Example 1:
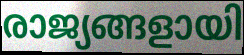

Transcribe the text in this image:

രാജ്യങ്ങളായി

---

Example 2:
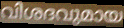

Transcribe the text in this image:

വിശദവുമായ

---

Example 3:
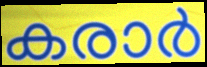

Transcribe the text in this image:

കരാർ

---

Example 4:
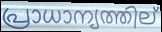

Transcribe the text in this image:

പ്രാധാന്യത്തില്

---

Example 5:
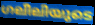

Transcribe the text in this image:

ഗലീലിയുടെ